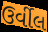
ઉર્વીલ